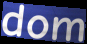
dom